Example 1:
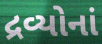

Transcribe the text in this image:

દ્રવ્યોનાં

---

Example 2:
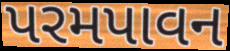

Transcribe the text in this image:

પરમપાવન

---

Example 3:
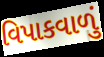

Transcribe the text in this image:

વિપાકવાળું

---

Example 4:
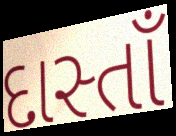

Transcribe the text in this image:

દાસ્તાઁ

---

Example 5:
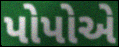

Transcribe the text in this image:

પોપોએ